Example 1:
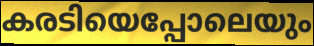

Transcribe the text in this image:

കരടിയെപ്പോലെയും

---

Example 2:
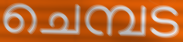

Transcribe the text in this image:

ചെമ്പട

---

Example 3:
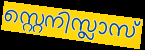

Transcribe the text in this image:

സ്റ്റെനിസ്ലാസ്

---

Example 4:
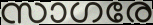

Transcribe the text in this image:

സാഗരേ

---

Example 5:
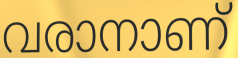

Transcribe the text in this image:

വരാനാണ്